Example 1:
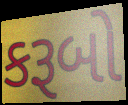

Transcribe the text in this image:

કરૂબો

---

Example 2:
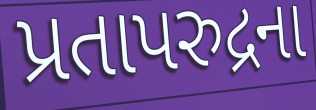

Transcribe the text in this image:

પ્રતાપરુદ્રના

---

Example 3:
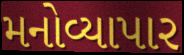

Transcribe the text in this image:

મનોવ્યાપાર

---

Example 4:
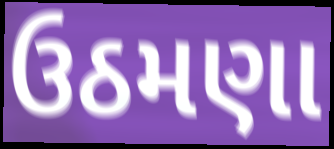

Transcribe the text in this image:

ઉઠમણા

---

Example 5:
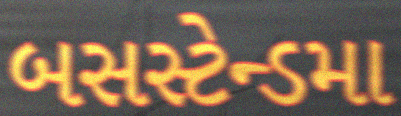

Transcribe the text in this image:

બસસ્ટેન્ડમા